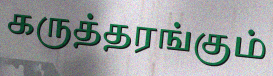
கருத்தரங்கும்